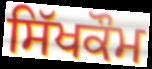
ਸਿੱਖਕੌਮ